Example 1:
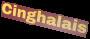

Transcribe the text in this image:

Cinghalais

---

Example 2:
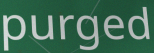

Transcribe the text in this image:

purged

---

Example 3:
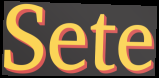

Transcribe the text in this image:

Sete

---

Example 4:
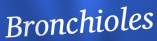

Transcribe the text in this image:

Bronchioles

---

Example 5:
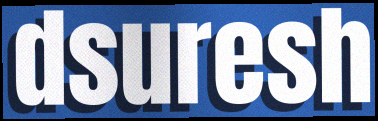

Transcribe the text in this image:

dsuresh